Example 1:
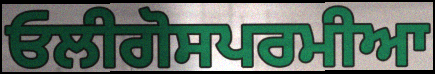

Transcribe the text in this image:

ਓਲੀਗੋਸਪਰਮੀਆ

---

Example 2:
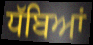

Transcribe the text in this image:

ਧੱਬਿਆਂ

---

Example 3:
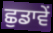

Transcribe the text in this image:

ਛੁਡਾਵੇਂ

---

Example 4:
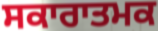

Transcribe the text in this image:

ਸਕਾਰਾਤਮਕ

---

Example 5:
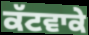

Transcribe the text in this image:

ਕੱਟਵਾਕੇ